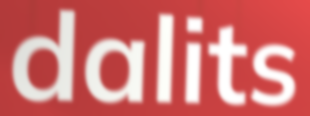
dalits